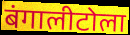
बंगालीटोला